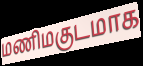
மணிமகுடமாக